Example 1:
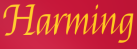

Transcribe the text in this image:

Harming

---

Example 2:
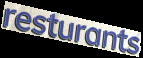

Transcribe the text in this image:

resturants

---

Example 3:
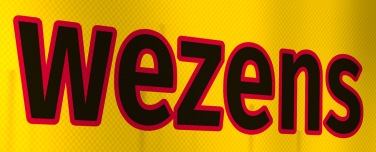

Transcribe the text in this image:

wezens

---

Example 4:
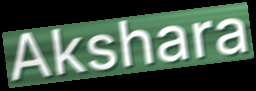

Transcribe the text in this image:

Akshara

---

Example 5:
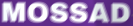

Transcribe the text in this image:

MOSSAD